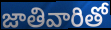
జాతివారితో